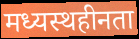
मध्यस्थहीनता